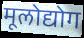
मूलोद्योग